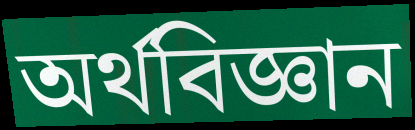
অৰ্থবিজ্ঞান